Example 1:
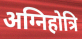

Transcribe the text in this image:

अग्निहोत्रि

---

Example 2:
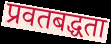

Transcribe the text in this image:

प्रवतबद्धता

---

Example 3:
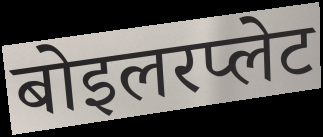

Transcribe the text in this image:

बोइलरप्लेट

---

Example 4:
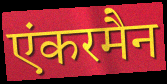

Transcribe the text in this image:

एंकरमैन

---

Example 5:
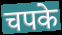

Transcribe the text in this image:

चपके